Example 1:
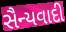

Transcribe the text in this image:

સૈન્યવાદી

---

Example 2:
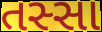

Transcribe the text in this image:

તસ્સા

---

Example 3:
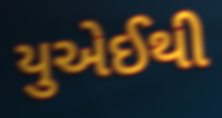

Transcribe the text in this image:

યુએઈથી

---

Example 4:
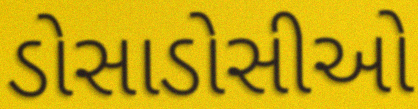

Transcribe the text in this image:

ડોસાડોસીઓ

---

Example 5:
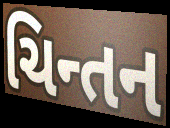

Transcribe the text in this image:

ચિન્તન